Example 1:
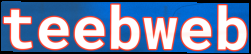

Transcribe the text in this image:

teebweb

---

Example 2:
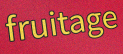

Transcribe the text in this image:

fruitage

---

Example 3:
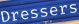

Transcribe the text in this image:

Dressers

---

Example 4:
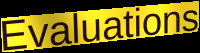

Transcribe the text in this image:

Evaluations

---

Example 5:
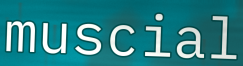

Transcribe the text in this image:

muscial